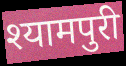
श्यामपुरी